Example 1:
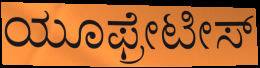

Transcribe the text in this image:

ಯೂಫ್ರೇಟೀಸ್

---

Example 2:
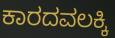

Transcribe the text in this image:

ಕಾರದವಲಕ್ಕಿ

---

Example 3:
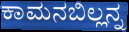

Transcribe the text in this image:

ಕಾಮನಬಿಲ್ಲನ್ನ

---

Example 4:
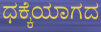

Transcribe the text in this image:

ಧಕ್ಕೆಯಾಗದ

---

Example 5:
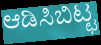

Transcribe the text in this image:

ಆಡಿಸಿಬಿಟ್ಟ